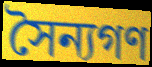
সৈন্যগণ